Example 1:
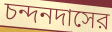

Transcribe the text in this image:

চন্দনদাসের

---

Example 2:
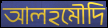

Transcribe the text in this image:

আলহমৌদি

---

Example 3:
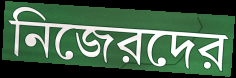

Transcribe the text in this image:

নিজেরদের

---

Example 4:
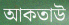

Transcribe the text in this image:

আকতাউ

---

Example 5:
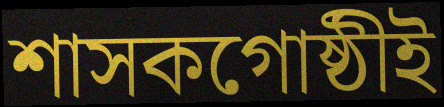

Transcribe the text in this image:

শাসকগোষ্ঠীই